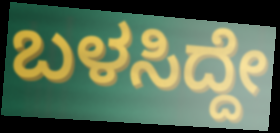
ಬಳಸಿದ್ದೇ